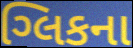
ગ્લિકના